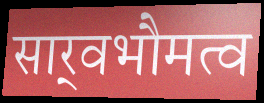
सार्वभौमत्व